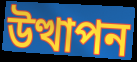
উত্থাপন